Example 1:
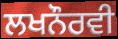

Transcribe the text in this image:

ਲਖਨੌਰਵੀ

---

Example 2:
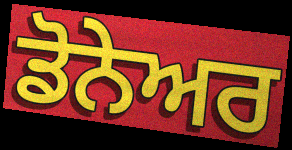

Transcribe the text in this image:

ਡੋਨੇਅਰ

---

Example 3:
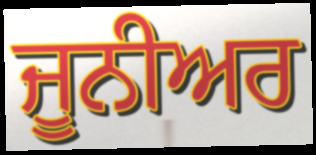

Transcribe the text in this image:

ਜੂਨੀਅਰ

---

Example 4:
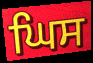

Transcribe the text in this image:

ਘਿਸ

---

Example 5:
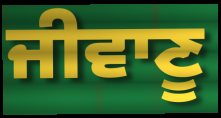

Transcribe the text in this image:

ਜੀਵਾਣੂ